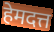
हेमदत्त